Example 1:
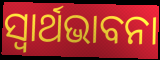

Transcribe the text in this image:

ସ୍ଵାର୍ଥଭାବନା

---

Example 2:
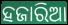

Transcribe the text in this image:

ହଜାରିଆ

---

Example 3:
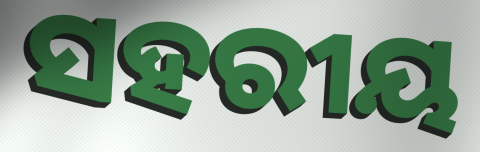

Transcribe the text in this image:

ସହରୀୟ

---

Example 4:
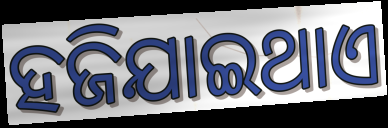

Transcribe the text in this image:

ହଜିଯାଇଥାଏ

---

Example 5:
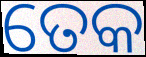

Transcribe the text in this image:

ତେକ